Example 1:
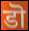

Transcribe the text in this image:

डॊ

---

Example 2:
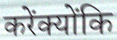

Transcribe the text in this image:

करेंक्योंकि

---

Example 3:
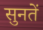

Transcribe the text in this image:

सुनतें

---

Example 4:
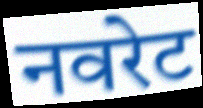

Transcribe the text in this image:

नवरेट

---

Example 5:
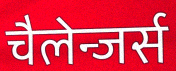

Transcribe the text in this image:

चैलेन्जर्स